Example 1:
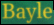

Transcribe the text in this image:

Bayle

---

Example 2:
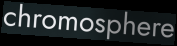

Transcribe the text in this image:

chromosphere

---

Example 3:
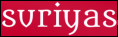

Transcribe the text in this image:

suriyas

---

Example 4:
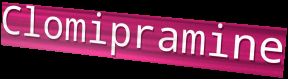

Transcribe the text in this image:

Clomipramine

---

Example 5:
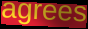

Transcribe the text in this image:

agrees